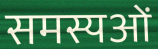
समस्यओं